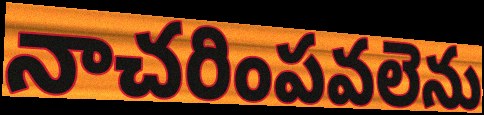
నాచరింపవలెను